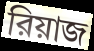
রিয়াজ